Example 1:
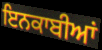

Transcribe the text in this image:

ਇਨਕਾਬੀਆਂ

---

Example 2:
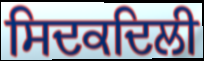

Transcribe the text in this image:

ਸਿਦਕਦਿਲੀ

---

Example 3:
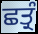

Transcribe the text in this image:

ਛਤ੍ਰੰ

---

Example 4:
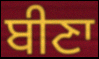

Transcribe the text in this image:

ਬੀਣਾ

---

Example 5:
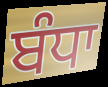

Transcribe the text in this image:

ਬੰਧਾ